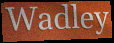
Wadley